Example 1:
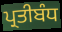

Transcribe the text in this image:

ਪ੍ਰਤੀਬੰਧ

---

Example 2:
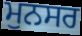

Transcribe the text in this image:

ਮੁਨਸਰ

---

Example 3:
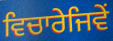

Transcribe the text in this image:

ਵਿਚਾਰੇਜਿਵੇਂ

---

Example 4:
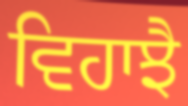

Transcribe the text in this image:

ਵਿਹਾਝੈ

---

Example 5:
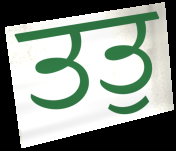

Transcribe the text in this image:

ਤਤੁ